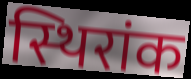
स्थिरांक